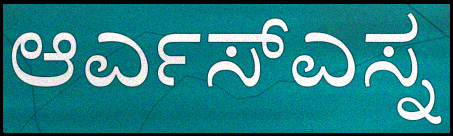
ಆರ್ಎಸ್ಎಸ್ನ